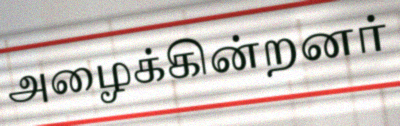
அழைக்கின்றனர்